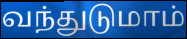
வந்துடுமாம்